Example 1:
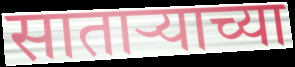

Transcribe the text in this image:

साताऱ्याच्या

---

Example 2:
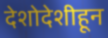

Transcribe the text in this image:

देशोदेशीहून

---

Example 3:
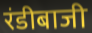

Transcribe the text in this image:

रंडीबाजी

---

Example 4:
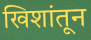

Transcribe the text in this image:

खिशांतून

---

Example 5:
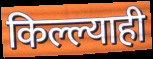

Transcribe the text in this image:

किल्ल्याही